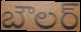
బౌలర్